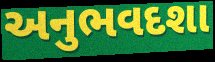
અનુભવદશા